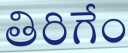
తిరిగేం